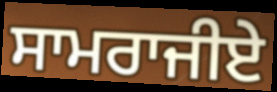
ਸਾਮਰਾਜੀਏ